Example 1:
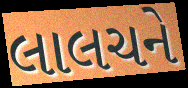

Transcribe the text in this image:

લાલચને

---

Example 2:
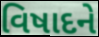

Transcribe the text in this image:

વિષાદને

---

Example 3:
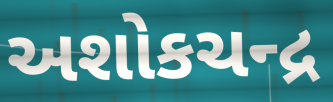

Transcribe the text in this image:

અશોકચન્દ્ર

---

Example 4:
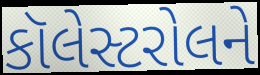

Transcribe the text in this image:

કૉલેસ્ટરોલને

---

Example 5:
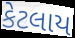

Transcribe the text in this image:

કેટલાય